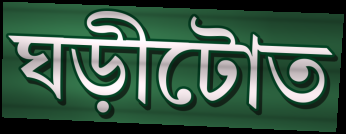
ঘড়ীটোত